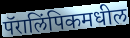
पॅरालिंपिकमधील